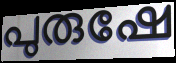
പുരുഷേ